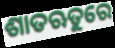
ଶାତଋତୁରେ